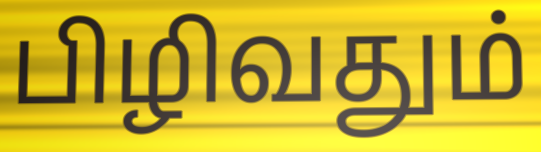
பிழிவதும்